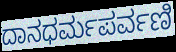
ದಾನಧರ್ಮಪರ್ವಣಿ